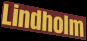
Lindholm